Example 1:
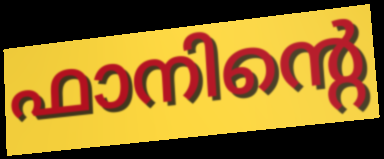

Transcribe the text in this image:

ഫാനിന്റെ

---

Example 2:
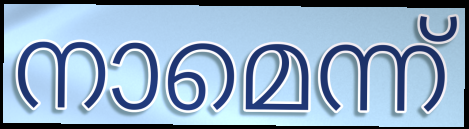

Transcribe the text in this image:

നാമെന്ന്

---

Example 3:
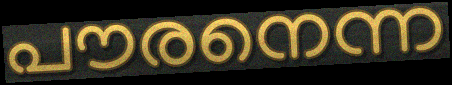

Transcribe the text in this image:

പൗരനെന്ന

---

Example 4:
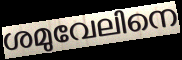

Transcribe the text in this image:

ശമുവേലിനെ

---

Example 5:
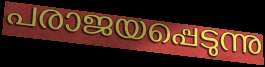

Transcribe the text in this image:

പരാജയപ്പെടുന്നു